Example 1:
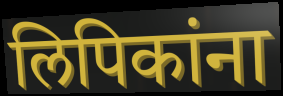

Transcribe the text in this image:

लिपिकांना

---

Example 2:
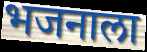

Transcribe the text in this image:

भजनाला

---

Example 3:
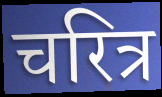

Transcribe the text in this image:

चरित्र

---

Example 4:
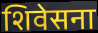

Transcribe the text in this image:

शिवेसना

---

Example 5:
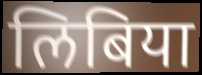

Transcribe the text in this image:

लिबिया